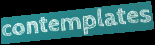
contemplates